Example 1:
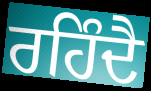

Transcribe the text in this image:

ਰਹਿੰਦੈ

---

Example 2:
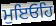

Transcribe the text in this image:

ਮੁਇਓਹਿ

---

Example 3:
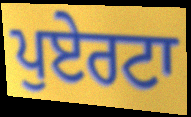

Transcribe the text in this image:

ਪੁਏਰਟਾ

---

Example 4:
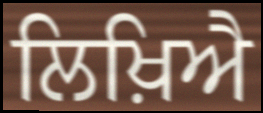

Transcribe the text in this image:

ਲਿਖ਼ਿਐ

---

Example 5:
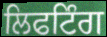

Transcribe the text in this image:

ਲਿਫਟਿੰਗ